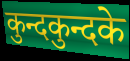
कुन्दकुन्दके